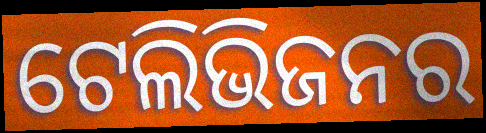
ଟେଲିଭିଜନର